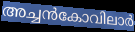
അച്ചൻകോവിലാർ